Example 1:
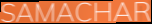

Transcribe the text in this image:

SAMACHAR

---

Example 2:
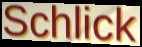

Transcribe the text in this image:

Schlick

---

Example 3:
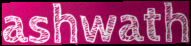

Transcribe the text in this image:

ashwath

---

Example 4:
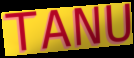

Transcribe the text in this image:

TANU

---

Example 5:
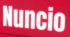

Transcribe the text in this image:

Nuncio